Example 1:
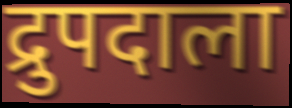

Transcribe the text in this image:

द्रुपदाला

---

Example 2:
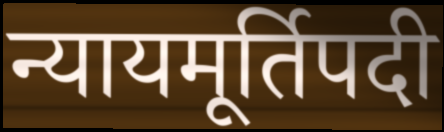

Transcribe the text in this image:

न्यायमूर्तिपदी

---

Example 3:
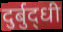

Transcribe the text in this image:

दुर्बुद्धी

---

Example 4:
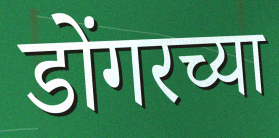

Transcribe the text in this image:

डोंगरच्या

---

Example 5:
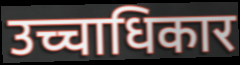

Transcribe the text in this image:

उच्चाधिकार